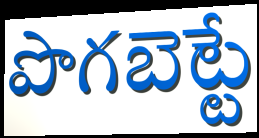
పొగబెట్టే